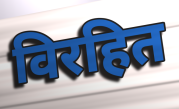
विरहित